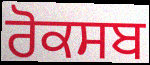
ਰੋਕਸਬ